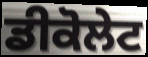
ਡੀਕੋਲੇਟ